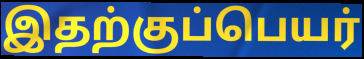
இதற்குப்பெயர்